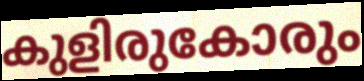
കുളിരുകോരും